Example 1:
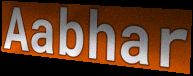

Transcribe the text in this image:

Aabhar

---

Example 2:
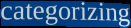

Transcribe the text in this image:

categorizing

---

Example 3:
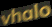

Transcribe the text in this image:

vhalo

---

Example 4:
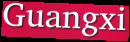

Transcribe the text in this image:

Guangxi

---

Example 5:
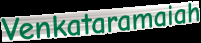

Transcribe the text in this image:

Venkataramaiah